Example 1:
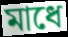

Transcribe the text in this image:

মাধে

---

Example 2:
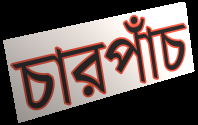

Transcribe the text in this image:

চারপাঁচ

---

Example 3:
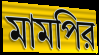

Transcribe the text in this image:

মামপির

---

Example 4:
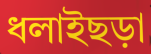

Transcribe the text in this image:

ধলাইছড়া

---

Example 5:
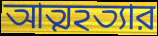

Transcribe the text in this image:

আত্মহত্যার